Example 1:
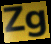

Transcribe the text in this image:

Zg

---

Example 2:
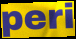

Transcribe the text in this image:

peri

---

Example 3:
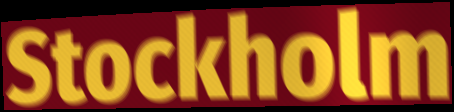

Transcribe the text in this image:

Stockholm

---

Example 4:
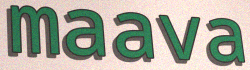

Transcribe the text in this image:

maava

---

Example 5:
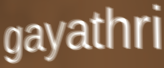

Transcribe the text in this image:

gayathri